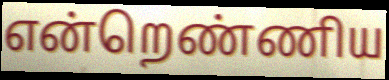
என்றெண்ணிய